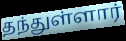
தந்துள்ளார்